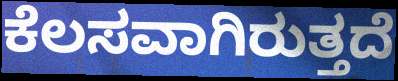
ಕೆಲಸವಾಗಿರುತ್ತದೆ